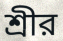
শ্রীর